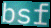
bsf